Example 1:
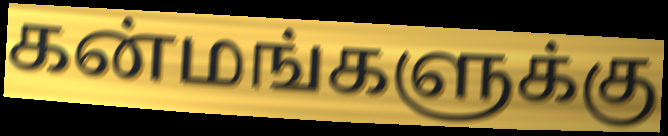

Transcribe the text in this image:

கன்மங்களுக்கு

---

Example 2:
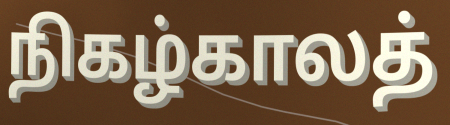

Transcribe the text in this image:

நிகழ்காலத்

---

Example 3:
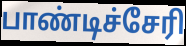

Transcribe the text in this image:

பாண்டிச்சேரி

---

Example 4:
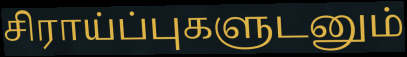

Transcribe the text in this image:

சிராய்ப்புகளுடனும்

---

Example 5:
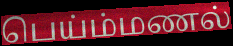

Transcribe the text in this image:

பெய்ம்மணல்